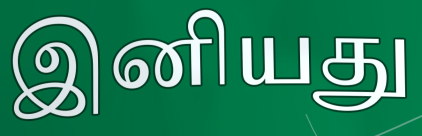
இனியது